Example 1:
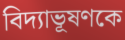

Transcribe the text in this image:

বিদ্যাভূষণকে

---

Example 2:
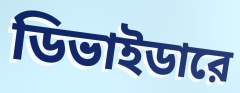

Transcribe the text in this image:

ডিভাইডারে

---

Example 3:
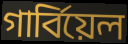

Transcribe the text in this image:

গার্বিয়েল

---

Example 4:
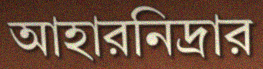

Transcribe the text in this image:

আহারনিদ্রার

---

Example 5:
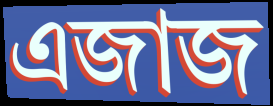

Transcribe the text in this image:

এজাজ